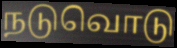
நடுவொடு